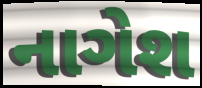
નાગેશ